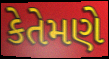
કેતેમણે